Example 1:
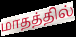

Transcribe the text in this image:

மாதத்தில்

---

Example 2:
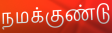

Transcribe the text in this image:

நமக்குண்டு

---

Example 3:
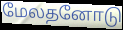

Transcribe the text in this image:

மேலதனோடு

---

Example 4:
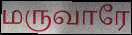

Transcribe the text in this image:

மருவாரே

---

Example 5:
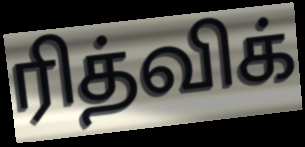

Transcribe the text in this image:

ரித்விக்